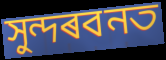
সুন্দৰবনত